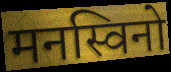
मनस्विनो